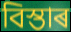
বিস্তাৰ